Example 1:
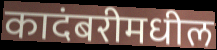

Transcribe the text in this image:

कादंबरीमधील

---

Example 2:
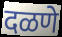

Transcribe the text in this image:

दळणे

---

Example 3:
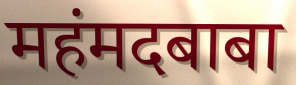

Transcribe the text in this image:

महंमदबाबा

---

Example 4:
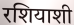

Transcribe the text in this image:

रशियाशी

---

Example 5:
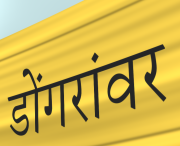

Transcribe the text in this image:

डोंगरांवर